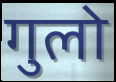
गुलो